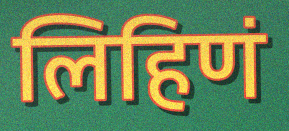
लिहिणं